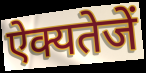
ऐक्यतेजें